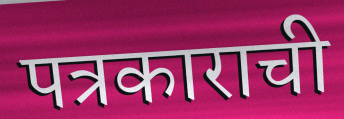
पत्रकाराची